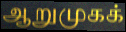
ஆறுமுகக்